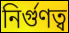
নির্গুণত্ব